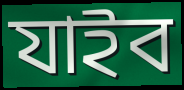
যাইব